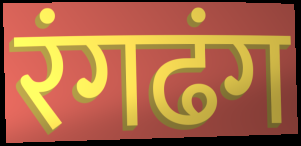
रंगढंग